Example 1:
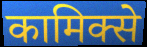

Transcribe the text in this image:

कामिक्से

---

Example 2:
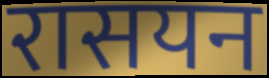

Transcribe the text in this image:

रासयन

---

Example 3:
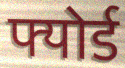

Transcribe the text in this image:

फ्योर्ड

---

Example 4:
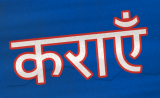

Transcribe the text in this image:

कराएँ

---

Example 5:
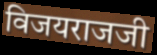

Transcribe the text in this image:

विजयराजजी